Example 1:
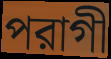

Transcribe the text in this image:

পরাগী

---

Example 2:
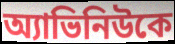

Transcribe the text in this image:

অ্যাভিনিউকে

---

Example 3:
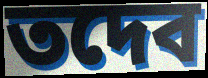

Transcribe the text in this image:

তদেব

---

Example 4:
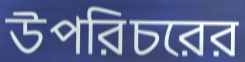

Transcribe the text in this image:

উপরিচরের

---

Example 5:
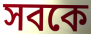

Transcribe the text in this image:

সবকে